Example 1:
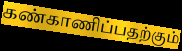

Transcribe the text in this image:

கண்காணிப்பதற்கும்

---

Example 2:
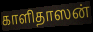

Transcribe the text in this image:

காளிதாஸன்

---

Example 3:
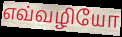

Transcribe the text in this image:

எவ்வழியோ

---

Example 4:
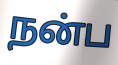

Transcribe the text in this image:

நன்ப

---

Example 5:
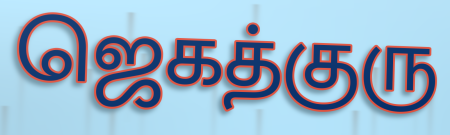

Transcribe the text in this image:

ஜெகத்குரு